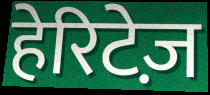
हेरिटेज़